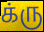
க்ரு